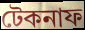
টেকনাফ